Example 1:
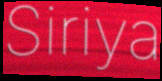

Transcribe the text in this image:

Siriya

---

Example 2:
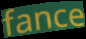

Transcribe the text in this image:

fance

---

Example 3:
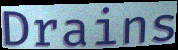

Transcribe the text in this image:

Drains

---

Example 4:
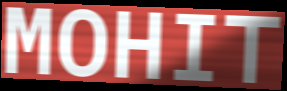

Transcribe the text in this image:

MOHIT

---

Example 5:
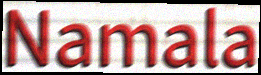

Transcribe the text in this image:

Namala